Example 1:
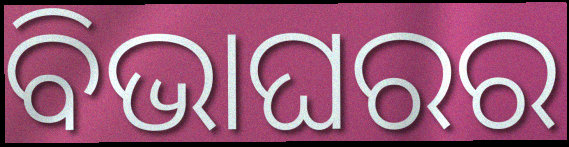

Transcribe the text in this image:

ବିଭାଘରର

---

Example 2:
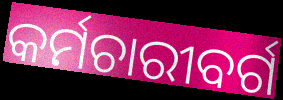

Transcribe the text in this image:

କର୍ମଚାରୀବର୍ଗ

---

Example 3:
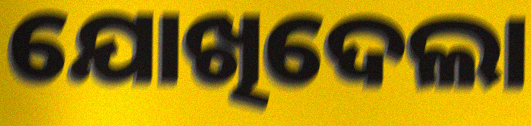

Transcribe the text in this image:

ଯୋଖିଦେଲା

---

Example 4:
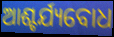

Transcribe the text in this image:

ଆଶ୍ଚର୍ଯ୍ୟବୋଧ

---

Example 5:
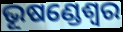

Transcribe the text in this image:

ଭୂଷଣ୍ଡେଶ୍ଵର